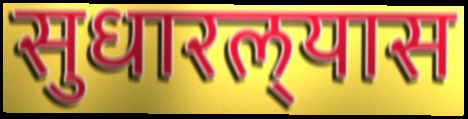
सुधारल्यास